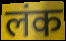
लंक